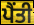
ਪੈਂਤੀ